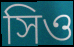
সিও